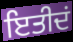
ਇਤੀਦਂ